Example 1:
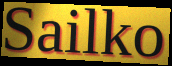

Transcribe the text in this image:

Sailko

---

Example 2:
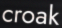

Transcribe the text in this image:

croak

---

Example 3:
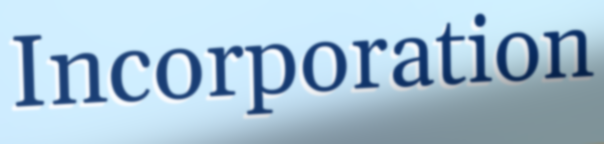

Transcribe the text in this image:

Incorporation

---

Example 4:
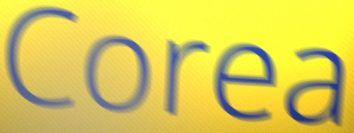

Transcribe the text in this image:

Corea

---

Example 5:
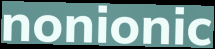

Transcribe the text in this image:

nonionic